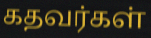
கதவர்கள்